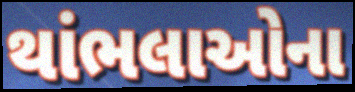
થાંભલાઓના